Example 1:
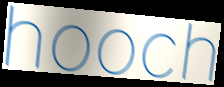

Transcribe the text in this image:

hooch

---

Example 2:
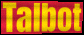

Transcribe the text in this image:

Talbot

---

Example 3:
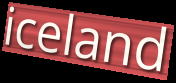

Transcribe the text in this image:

iceland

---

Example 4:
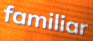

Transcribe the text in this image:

familiar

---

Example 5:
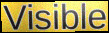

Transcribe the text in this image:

Visible